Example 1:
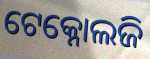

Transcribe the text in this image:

ଟେକ୍ନୋଲଜି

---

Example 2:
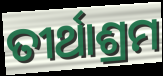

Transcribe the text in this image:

ତୀର୍ଥାଶ୍ରମ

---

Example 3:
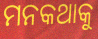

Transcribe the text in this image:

ମନକଥାକୁ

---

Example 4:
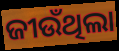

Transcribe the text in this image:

ଜୀଉଁଥିଲା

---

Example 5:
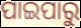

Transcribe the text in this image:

ପାଇପାରୁ